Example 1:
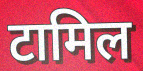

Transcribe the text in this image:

टामिल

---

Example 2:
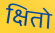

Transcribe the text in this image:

क्षितो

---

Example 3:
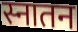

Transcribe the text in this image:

स्नातन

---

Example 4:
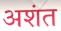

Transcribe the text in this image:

अशंत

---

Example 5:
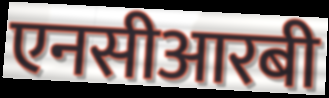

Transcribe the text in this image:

एनसीआरबी